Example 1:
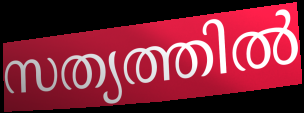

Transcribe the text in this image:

സത്യത്തിൽ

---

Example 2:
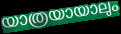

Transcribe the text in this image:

യാത്രയായാലും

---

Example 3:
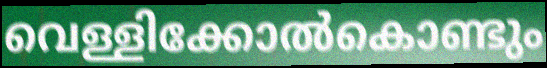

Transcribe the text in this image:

വെള്ളിക്കോൽകൊണ്ടും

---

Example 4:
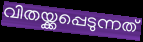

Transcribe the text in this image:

വിതയ്ക്കപ്പെടുന്നത്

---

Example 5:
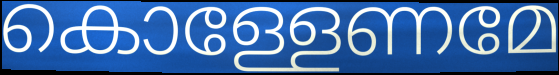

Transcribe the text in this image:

കൊള്ളേണമേ